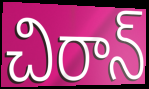
చిరాన్